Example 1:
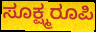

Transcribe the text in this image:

ಸೂಕ್ಷ್ಮರೂಪಿ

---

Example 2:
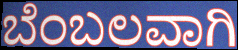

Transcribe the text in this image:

ಬೆಂಬಲವಾಗಿ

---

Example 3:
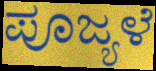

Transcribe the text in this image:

ಪೂಜ್ಯಳೆ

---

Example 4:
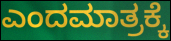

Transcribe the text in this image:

ಎಂದಮಾತ್ರಕ್ಕೆ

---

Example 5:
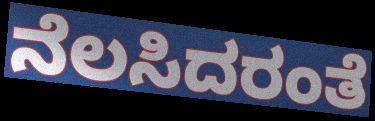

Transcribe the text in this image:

ನೆಲಸಿದರಂತೆ